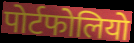
पोर्टफोलियो